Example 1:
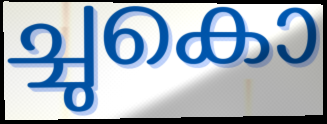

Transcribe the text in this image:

ച്ചുകൊ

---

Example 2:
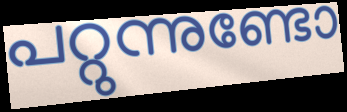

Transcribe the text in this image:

പറ്റുന്നുണ്ടോ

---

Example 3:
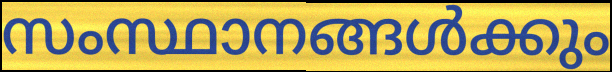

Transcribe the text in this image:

സംസ്ഥാനങ്ങൾക്കും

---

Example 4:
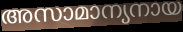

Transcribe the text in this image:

അസാമാന്യനായ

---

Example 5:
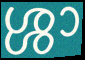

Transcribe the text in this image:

ശ്ശാ